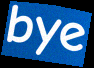
bye